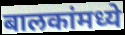
बालकांमध्ये